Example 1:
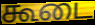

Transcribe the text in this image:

கூடை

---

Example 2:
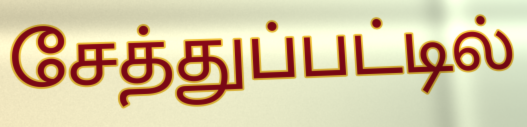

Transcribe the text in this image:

சேத்துப்பட்டில்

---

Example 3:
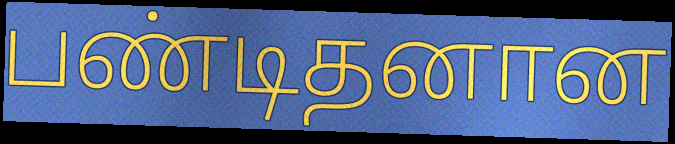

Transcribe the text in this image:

பண்டிதனான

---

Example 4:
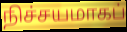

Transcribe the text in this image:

நிச்சயமாகப்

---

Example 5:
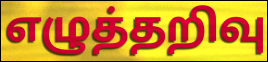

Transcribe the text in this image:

எழுத்தறிவு